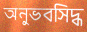
অনুভবসিদ্ধ